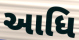
આધિ